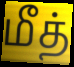
மீத்